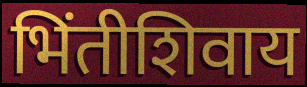
भिंतीशिवाय